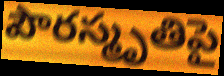
పౌరస్మృతిపై